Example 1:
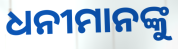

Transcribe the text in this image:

ଧନୀମାନଙ୍କୁ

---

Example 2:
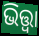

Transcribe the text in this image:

ଭିତ୍ତ୍ୱା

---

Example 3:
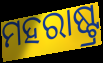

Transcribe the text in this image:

ମହରାଷ୍ଟ୍ର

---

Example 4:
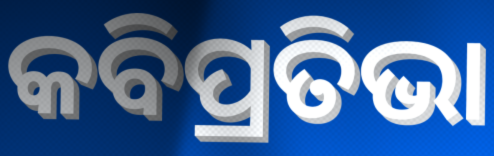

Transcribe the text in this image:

କବିପ୍ରତିଭା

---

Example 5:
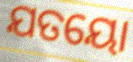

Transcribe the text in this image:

ଯତୟୋ